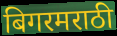
बिगरमराठी